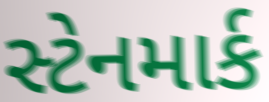
સ્ટેનમાર્ક